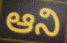
ఆని